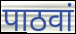
पाठवां